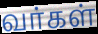
வர்கள்